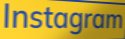
Instagram